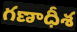
గణాధీశ